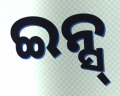
ଇନ୍ସ୍